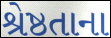
શ્રેષ્ઠતાના